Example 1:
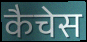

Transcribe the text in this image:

कैचेस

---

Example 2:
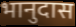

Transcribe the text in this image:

भानुदास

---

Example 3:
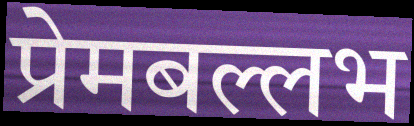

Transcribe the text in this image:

प्रेमबल्लभ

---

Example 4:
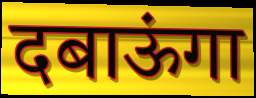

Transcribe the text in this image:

दबाऊंगा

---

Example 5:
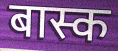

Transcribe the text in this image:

बास्क